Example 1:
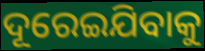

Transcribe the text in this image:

ଦୂରେଇଯିବାକୁ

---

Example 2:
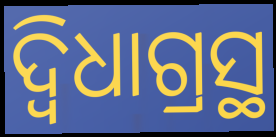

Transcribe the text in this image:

ଦ୍ବିଧାଗ୍ରସ୍ଥ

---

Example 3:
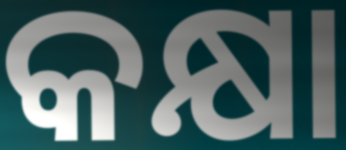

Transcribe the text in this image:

କକ୍ଷା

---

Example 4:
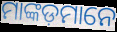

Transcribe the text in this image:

ମାଙ୍କଡ଼ମାନେ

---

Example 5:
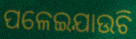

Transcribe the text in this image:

ପଳେଇଯାଉଚି